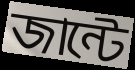
জান্টে